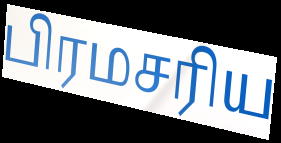
பிரமசரிய